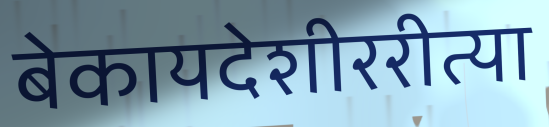
बेकायदेशीररीत्या